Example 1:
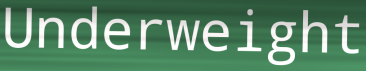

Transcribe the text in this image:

Underweight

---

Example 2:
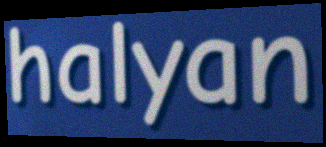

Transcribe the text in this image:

halyan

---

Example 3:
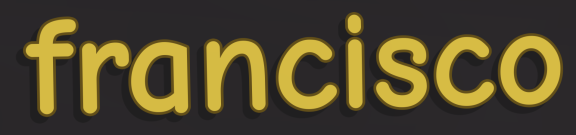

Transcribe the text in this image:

francisco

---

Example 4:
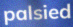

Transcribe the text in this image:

palsied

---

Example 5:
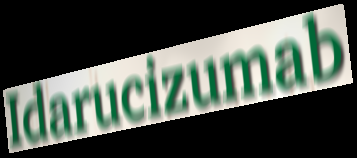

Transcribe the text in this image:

Idarucizumab